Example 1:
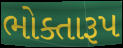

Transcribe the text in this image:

ભોક્તારૂપ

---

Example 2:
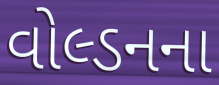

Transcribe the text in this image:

વોલ્ડનના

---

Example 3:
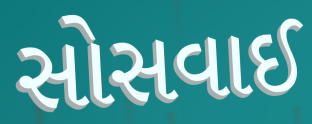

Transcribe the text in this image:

સોસવાઈ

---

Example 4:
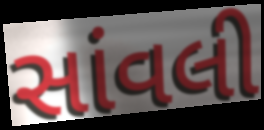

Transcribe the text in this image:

સાંવલી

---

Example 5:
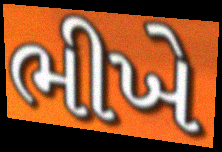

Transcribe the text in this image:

ભીખે